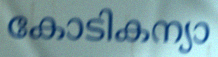
കോടികന്യാ